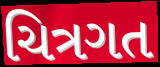
ચિત્રગત